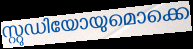
സ്റ്റുഡിയോയുമൊക്കെ